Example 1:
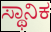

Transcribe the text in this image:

ಸ್ಥಾನಿಕ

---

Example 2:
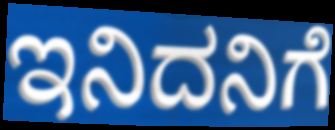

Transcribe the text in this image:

ಇನಿದನಿಗೆ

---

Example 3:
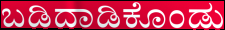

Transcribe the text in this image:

ಬಡಿದಾಡಿಕೊಂಡು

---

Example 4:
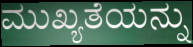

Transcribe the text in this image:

ಮುಖ್ಯತೆಯನ್ನು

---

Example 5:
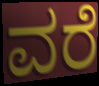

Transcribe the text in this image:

ವರೆ